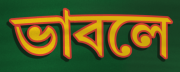
ভাবলে